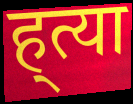
ह्त्या